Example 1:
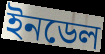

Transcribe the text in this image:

ইনডেল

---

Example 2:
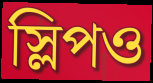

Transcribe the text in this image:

স্লিপও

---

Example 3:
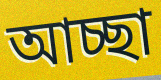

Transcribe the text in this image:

আচ্ছা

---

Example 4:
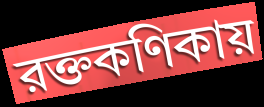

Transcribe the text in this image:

রক্তকণিকায়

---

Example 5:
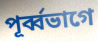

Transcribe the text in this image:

পূর্ব্বভাগে